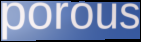
porous